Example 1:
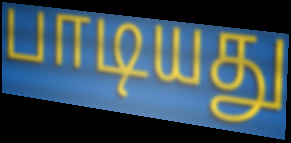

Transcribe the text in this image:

பாடியது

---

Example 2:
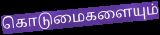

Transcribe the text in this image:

கொடுமைகளையும்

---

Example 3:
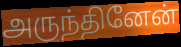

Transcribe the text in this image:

அருந்தினேன்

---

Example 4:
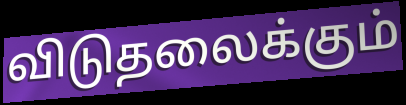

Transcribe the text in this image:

விடுதலைக்கும்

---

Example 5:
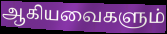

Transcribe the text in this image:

ஆகியவைகளும்